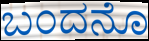
ಬಂದನೊ